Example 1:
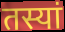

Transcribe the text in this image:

तस्यां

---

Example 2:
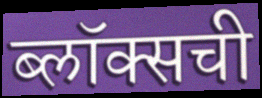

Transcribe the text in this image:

ब्लॉक्सची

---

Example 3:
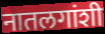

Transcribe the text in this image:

नातलगांशी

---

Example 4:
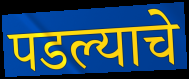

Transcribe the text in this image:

पडल्याचे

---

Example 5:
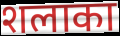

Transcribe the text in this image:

शलाका